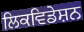
ਲਿਕਵਿਡੇਸ਼ਨ